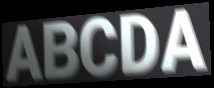
ABCDA